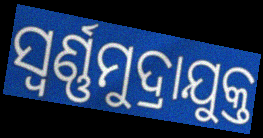
ସ୍ବର୍ଣ୍ଣମୁଦ୍ରାଯୁକ୍ତ